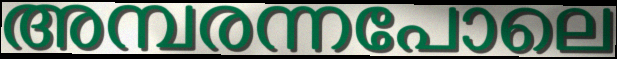
അമ്പരന്നപോലെ